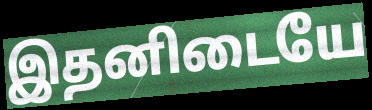
இதனிடையே